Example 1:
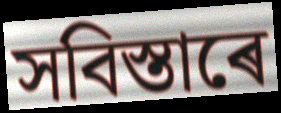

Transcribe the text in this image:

সবিস্তাৰে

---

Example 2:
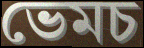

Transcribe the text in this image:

ভেমচ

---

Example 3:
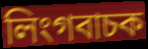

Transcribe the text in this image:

লিংগবাচক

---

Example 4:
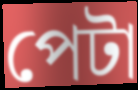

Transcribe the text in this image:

পেটা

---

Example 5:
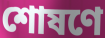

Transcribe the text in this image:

শোষণে